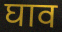
घाव